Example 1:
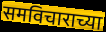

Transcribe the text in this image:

समविचाराच्या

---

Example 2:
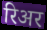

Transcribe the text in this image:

रिअर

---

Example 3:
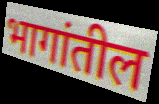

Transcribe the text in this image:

भागांतील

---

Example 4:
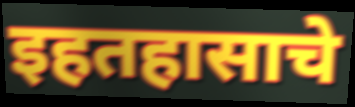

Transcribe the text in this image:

इहतहासाचे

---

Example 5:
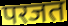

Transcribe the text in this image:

परजत